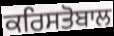
ਕਰਿਸਤੋਬਾਲ